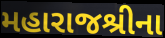
મહારાજશ્રીના